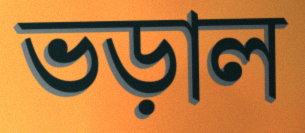
ভড়াল